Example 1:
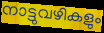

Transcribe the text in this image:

നാട്ടുവഴികളും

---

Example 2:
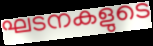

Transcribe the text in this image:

ഘടനകളുടെ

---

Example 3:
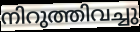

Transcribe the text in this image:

നിറുത്തിവച്ചു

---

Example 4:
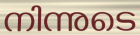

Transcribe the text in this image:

നിന്നുടെ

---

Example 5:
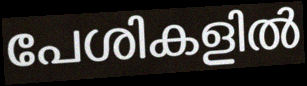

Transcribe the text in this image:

പേശികളിൽ